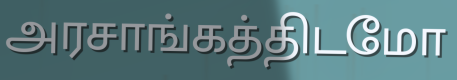
அரசாங்கத்திடமோ